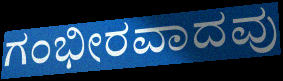
ಗಂಭೀರವಾದವು